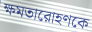
ক্ষমতারোহণকে